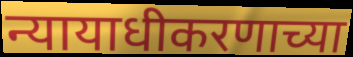
न्यायाधीकरणाच्या